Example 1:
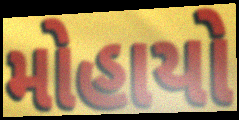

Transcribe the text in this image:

મોહાયો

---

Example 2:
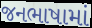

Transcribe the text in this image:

જનભાષામાં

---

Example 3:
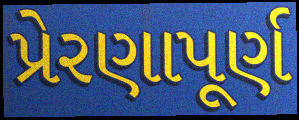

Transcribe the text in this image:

પ્રેરણાપૂર્ણ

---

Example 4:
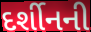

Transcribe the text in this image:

દર્શીનની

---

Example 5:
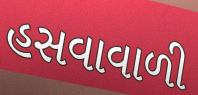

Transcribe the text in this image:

હસવાવાળી